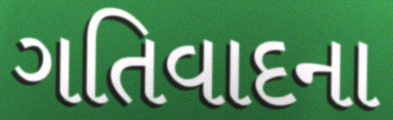
ગતિવાદના